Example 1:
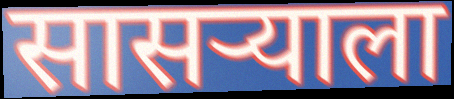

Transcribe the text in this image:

सासर्‍याला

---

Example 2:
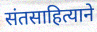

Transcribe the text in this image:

संतसाहित्याने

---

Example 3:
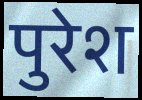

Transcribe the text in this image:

पुरेश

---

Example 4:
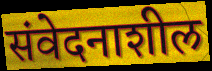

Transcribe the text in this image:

संवेदनाशील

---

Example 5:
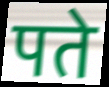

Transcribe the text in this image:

पते